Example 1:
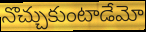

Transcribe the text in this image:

నొచ్చుకుంటాడేమో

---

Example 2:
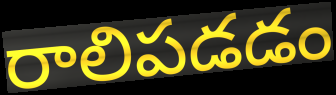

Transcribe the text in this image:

రాలిపడడం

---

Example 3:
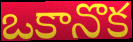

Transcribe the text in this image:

ఒకానొక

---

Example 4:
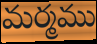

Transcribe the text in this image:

మర్మము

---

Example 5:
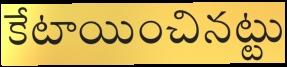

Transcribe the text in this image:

కేటాయించినట్టు